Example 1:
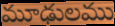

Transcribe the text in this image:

మూఢులము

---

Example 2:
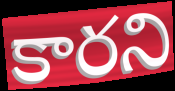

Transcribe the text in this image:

కారని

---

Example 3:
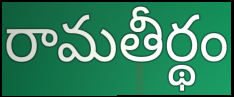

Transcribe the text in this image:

రామతీర్థం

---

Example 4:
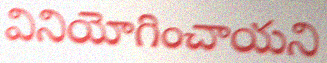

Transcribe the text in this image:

వినియోగించాయని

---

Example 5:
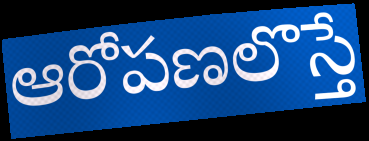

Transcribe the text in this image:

ఆరోపణలొస్తే